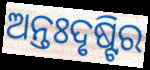
ଅନ୍ତଃଦୃଷ୍ଟିର